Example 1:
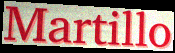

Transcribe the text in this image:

Martillo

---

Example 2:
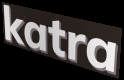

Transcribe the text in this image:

katra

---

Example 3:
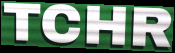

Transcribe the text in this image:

TCHR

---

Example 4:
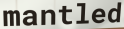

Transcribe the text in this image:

mantled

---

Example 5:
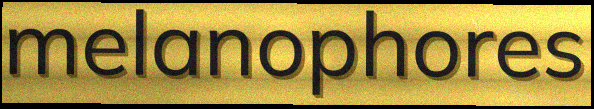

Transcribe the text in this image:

melanophores